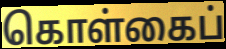
கொள்கைப்